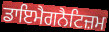
ਡਾਇਮੈਗਨੈਟਿਜ਼ਮ